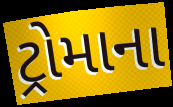
ટ્રોમાના